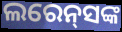
ଲରେନ୍‌ସଙ୍କ